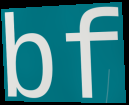
bf